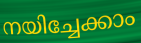
നയിച്ചേക്കാം